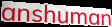
anshuman